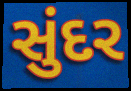
સુંદર